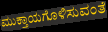
ಮುಕ್ತಾಯಗೊಳಿಸುವಂತೆ